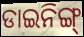
ଡାଇନିଙ୍ଗ୍